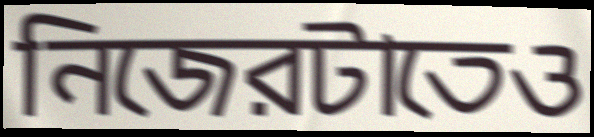
নিজেরটাতেও